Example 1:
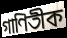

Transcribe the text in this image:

গাণিতীক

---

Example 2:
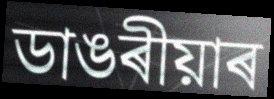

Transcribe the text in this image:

ডাঙৰীয়াৰ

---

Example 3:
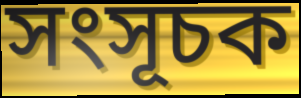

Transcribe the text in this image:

সংসূচক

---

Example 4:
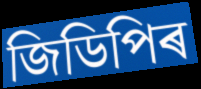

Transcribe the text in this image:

জিডিপিৰ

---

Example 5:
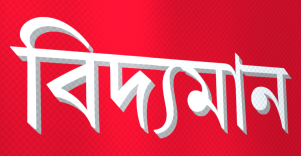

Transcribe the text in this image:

বিদ্যমান